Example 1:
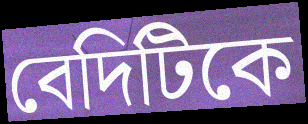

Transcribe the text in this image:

বেদিটিকে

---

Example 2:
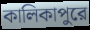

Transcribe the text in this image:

কালিকাপুরে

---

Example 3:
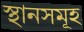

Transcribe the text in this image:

স্থানসমূহ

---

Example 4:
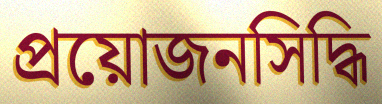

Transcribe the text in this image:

প্রয়োজনসিদ্ধি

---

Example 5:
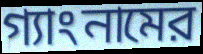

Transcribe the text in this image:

গ্যাংনামের